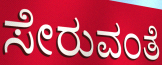
ಸೇರುವಂತೆ